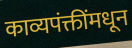
काव्यपंक्तींमधून